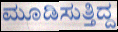
ಮೂಡಿಸುತ್ತಿದ್ದ